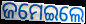
ଜମେଇଲେ